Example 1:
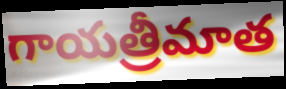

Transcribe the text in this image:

గాయత్రీమాత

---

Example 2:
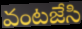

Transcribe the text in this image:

వంటజేసి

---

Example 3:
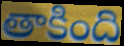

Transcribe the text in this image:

తాకింది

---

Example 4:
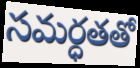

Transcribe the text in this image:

సమర్ధతతో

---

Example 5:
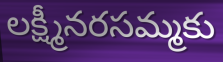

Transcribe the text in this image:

లక్ష్మీనరసమ్మకు